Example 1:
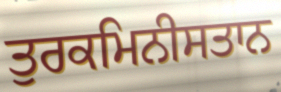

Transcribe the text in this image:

ਤੁਰਕਮਿਨੀਸਤਾਨ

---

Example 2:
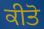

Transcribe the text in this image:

ਕੀਤੋ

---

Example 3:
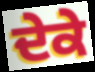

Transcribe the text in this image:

ਦੇਕੇ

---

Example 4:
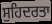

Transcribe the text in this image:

ਸੁਹਿਦਰਤਾ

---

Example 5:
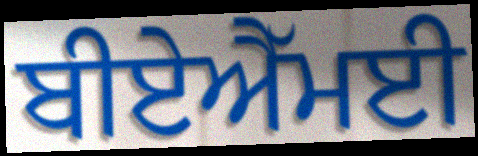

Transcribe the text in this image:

ਬੀਏਐੱਮਈ